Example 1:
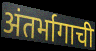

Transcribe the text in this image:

अंतर्भागाची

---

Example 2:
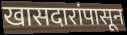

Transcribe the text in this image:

खासदारांपासून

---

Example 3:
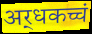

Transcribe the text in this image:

अर्धकच्चं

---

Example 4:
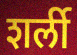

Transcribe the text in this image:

शर्ली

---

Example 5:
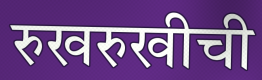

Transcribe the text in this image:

रुखरुखीची